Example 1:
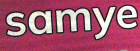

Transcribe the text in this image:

samye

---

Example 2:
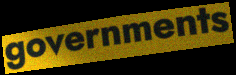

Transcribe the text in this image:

governments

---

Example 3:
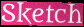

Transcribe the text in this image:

Sketch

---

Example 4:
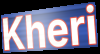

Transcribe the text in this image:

Kheri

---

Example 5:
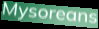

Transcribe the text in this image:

Mysoreans